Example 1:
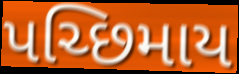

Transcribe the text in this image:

પચ્છિમાય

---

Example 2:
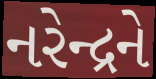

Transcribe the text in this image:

નરેન્દ્રને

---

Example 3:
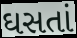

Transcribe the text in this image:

ઘસતાં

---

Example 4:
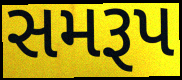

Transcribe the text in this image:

સમરૂપ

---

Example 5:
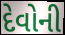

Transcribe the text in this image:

દેવોની